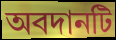
অবদানটি